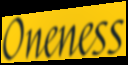
Oneness